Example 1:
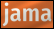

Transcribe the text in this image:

jama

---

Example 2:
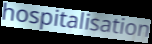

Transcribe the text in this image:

hospitalisation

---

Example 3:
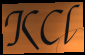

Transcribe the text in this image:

KCl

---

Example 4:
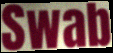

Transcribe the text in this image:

Swab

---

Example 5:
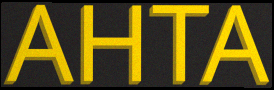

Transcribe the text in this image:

AHTA